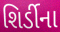
શિર્ડીના